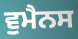
ਵੁਮੈਨਸ